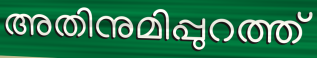
അതിനുമിപ്പുറത്ത്